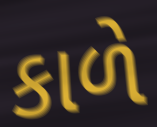
કાળે